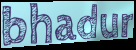
bhadur